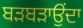
ਬੜਬੜਾਉਂਦਾ